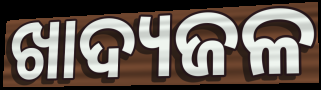
ଖାଦ୍ୟଜଳ